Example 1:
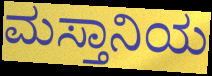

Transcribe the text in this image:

ಮಸ್ತಾನಿಯ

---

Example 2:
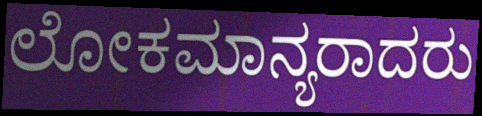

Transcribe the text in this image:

ಲೋಕಮಾನ್ಯರಾದರು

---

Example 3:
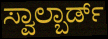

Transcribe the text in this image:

ಸ್ವಾಲ್ಬಾರ್ಡ್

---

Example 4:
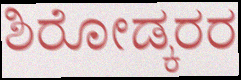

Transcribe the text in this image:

ಶಿರೋಡ್ಕರರ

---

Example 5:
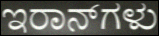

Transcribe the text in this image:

ಇರಾನ್‌ಗಳು